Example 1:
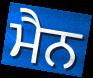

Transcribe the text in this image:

ਮੈਨ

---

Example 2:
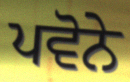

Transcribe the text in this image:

ਪਵੋਨੇ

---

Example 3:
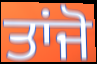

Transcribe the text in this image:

ਤਾਂਜੋ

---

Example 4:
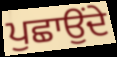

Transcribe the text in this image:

ਪੁਛਾਉਂਦੇ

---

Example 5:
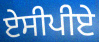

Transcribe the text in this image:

ਏਸੀਪੀਏ